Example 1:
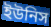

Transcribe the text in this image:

ইউনিস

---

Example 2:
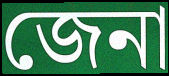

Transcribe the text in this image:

জেনা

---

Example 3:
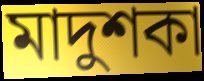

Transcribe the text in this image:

মাদুশকা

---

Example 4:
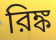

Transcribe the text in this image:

রিঙ্ক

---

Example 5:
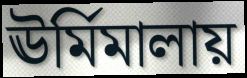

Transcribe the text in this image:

ঊর্মিমালায়